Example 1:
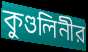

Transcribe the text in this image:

কুণ্ডলিনীর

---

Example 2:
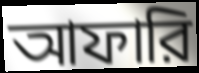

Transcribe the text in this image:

আফারি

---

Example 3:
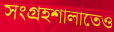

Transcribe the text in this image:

সংগ্রহশালাতেও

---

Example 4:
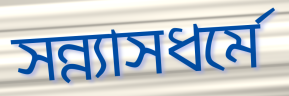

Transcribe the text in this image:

সন্ন্যাসধর্মে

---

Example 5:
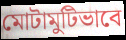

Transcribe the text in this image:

মোটামুটিভাবে